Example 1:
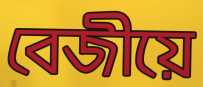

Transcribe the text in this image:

বেজীয়ে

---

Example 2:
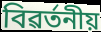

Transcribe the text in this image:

বিৱৰ্তনীয়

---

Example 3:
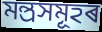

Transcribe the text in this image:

মন্ত্ৰসমূহৰ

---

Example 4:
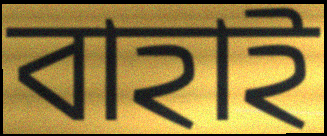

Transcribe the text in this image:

বাহাই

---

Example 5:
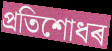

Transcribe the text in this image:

প্ৰতিশোধৰ